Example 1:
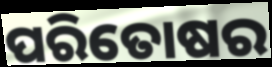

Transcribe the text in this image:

ପରିତୋଷର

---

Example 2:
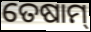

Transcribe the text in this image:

ତେଷାମ୍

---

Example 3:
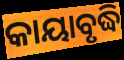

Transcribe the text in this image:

କାୟାବୃଦ୍ଧି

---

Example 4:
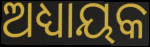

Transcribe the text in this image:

ଅଧ୍ୟାୟକ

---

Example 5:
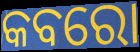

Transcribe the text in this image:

କବରୋ